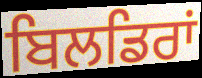
ਬਿਲਡਿਰਾਂ